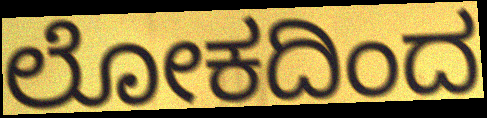
ಲೋಕದಿಂದ